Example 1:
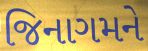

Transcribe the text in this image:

જિનાગમને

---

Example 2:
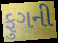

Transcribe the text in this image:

ફુગની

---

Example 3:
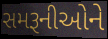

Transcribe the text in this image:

સમરૂનીઓને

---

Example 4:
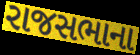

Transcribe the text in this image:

રાજસભાના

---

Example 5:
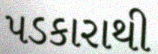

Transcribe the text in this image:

પડકારાથી